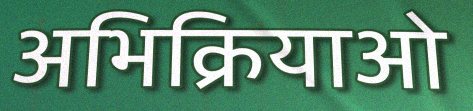
अभिक्रियाओ